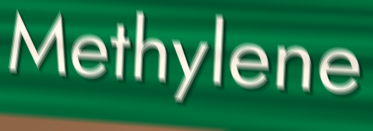
Methylene